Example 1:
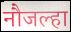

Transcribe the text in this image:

नौजल्हा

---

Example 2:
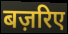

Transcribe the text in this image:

बज़रिए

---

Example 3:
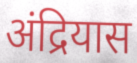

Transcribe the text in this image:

अंद्रियास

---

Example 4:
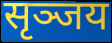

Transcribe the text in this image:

सृञ्जय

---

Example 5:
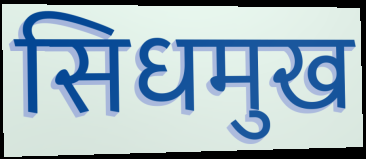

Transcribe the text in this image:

सिधमुख